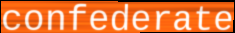
confederate